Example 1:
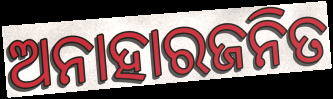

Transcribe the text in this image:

ଅନାହାରଜନିତ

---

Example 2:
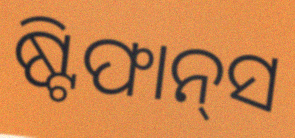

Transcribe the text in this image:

ଷ୍ଟିଫାନ୍‍ସ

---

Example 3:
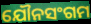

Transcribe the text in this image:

ଯୌନସଂଗମ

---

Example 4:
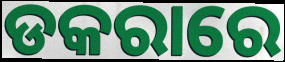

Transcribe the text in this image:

ଡକରାରେ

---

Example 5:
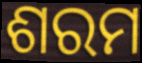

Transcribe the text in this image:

ଶରମ